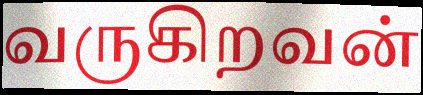
வருகிறவன்